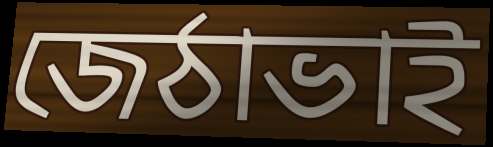
জেঠাভাই